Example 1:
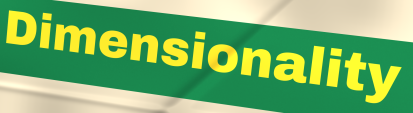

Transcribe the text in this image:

Dimensionality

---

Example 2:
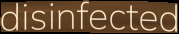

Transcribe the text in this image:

disinfected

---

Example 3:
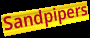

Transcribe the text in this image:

Sandpipers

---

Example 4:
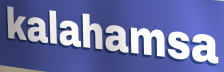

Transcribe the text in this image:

kalahamsa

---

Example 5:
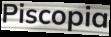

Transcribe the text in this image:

Piscopia